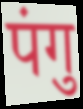
पंगु